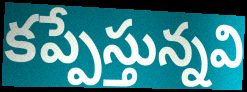
కప్పేస్తున్నవి